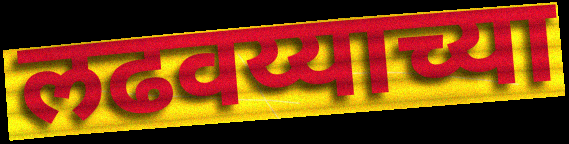
लढवय्याच्या